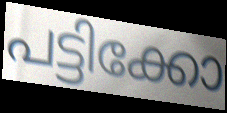
പട്ടിക്കോ